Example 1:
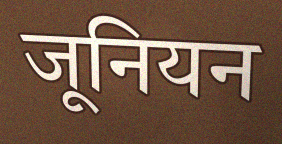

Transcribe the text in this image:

जूनियन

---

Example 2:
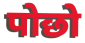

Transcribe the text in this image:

पोछो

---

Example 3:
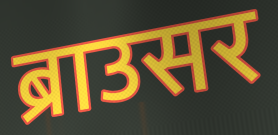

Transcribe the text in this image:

ब्राउसर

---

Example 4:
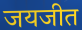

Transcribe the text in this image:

जयजीत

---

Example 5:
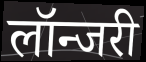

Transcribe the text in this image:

लॉन्जरी